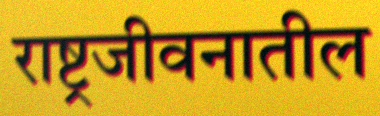
राष्ट्रजीवनातील